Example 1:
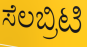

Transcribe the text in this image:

ಸೆಲಬ್ರಿಟಿ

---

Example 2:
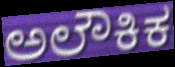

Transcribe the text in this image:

ಅಲೌಕಿಕ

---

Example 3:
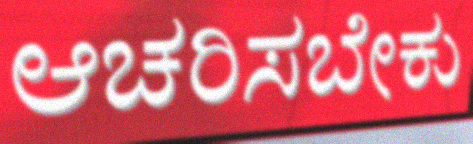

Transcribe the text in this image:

ಆಚರಿಸಬೇಕು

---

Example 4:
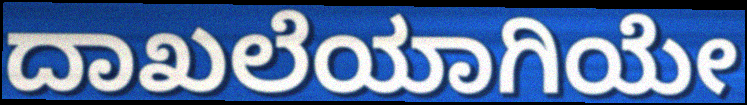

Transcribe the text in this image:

ದಾಖಲೆಯಾಗಿಯೇ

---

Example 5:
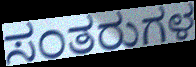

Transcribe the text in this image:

ಸಂತರುಗಳ